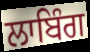
ਲਾਬਿੰਗ